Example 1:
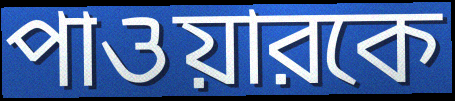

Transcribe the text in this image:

পাওয়ারকে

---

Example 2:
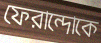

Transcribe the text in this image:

ফেরান্দোকে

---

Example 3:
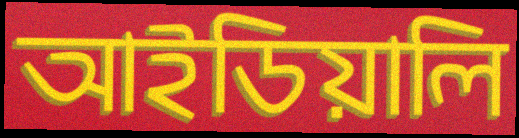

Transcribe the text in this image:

আইডিয়ালি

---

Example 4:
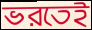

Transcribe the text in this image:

ভরতেই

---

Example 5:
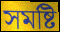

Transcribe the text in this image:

সমষ্টি